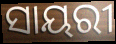
ସାୟରୀ